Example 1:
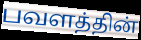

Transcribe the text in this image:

பவளத்தின்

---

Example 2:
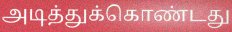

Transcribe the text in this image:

அடித்துக்கொண்டது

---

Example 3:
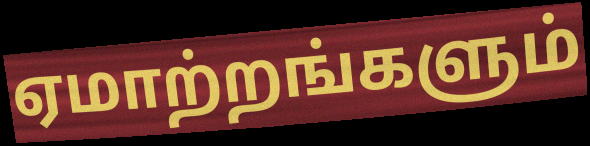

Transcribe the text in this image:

ஏமாற்றங்களும்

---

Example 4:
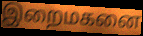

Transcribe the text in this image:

இறைமகனை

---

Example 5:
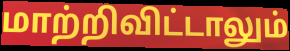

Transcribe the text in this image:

மாற்றிவிட்டாலும்